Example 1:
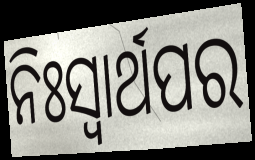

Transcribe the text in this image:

ନିଃସ୍ୱାର୍ଥପର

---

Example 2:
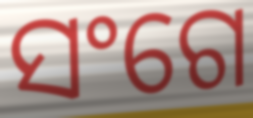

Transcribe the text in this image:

ସଂଗେ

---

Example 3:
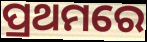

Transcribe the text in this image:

ପ୍ରଥମରେ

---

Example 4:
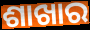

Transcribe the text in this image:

ଶାଖାର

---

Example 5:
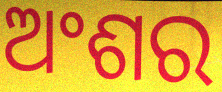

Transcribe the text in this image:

ଅଂଶର